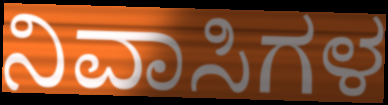
ನಿವಾಸಿಗಳ